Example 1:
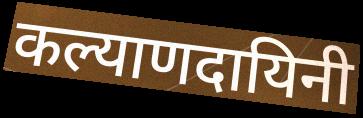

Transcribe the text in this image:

कल्याणदायिनी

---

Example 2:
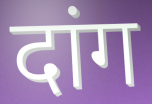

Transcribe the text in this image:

दांग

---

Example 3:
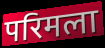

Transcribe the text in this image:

परिमला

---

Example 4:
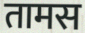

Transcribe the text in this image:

तामस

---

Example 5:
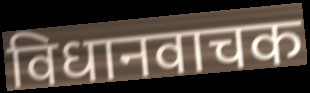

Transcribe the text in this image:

विधानवाचक